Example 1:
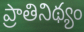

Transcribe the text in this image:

ప్రాతినిథ్యం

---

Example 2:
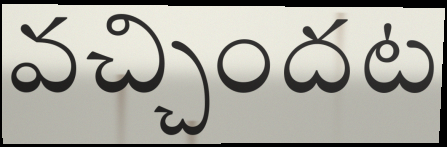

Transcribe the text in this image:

వచ్చిందట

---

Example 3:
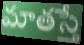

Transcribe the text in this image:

మాతస్తే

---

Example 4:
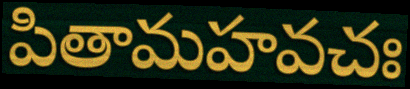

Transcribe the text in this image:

పితామహవచః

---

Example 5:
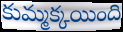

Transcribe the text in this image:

కుమ్మక్కయింది